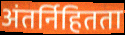
अंतर्निहितता